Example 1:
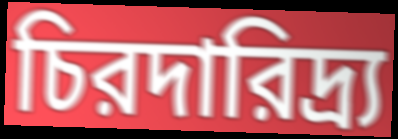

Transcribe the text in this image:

চিরদারিদ্র্য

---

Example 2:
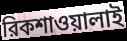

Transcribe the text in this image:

রিকশাওয়ালাই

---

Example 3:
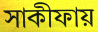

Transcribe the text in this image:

সাকীফায়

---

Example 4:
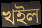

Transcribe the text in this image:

খইল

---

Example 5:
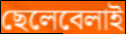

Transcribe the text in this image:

ছেলেবেলাই